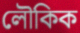
লৌকিক